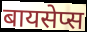
बायसेप्स